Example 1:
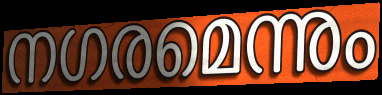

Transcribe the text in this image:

നഗരമെന്നും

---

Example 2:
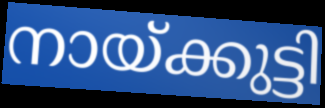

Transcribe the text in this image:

നായ്ക്കുട്ടി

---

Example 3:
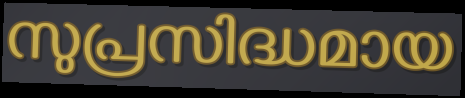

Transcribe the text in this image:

സുപ്രസിദ്ധമായ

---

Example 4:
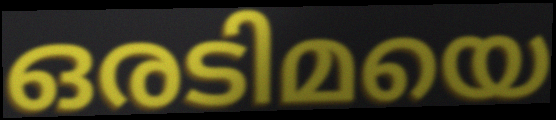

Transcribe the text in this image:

ഒരടിമയെ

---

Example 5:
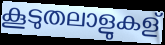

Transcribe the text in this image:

കൂടുതലാളുകള്